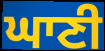
ਘਾਣੀ